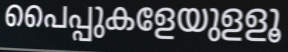
പൈപ്പുകളേയുളളൂ